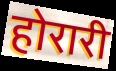
होरारी